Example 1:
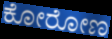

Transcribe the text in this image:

ಕೋರೋಣ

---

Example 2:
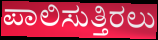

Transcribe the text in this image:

ಪಾಲಿಸುತ್ತಿರಲು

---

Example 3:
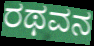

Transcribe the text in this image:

ರಥವನ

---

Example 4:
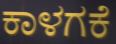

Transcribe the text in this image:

ಕಾಳಗಕೆ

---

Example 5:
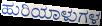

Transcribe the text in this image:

ಹುರಿಯಾಳುಗಳ